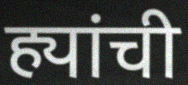
ह्यांची